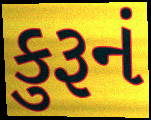
કુરૂનં